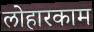
लोहारकाम